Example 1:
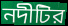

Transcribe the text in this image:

নদীটির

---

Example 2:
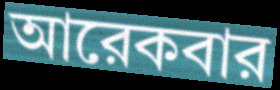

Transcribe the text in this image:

আরেকবার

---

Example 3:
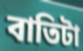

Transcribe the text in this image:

বাতিটা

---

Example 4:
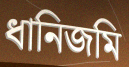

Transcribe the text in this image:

ধানিজমি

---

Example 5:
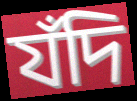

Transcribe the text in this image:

যঁদি